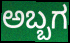
ಅಬ್ಬಗ